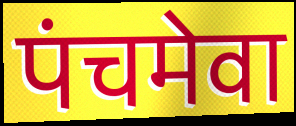
पंचमेवा